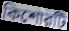
কিশোরটি